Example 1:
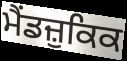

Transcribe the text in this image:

ਮੈਂਡਜ਼ੁਕਿਕ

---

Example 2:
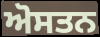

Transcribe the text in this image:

ਅੋਸਤਨ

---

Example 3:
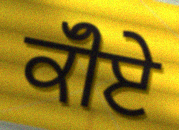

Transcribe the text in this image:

ਕੱੀਏ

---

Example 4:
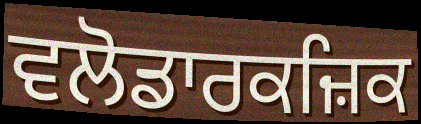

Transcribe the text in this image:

ਵਲੋਡਾਰਕਜ਼ਿਕ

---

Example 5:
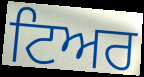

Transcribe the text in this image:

ਟਿਅਰ